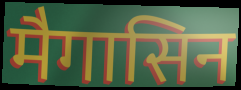
मैगासिन